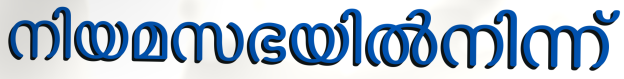
നിയമസഭയിൽനിന്ന്